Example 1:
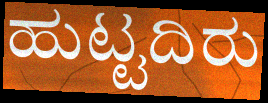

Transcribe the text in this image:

ಹುಟ್ಟದಿರು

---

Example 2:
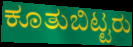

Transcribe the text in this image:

ಕೂತುಬಿಟ್ಟರು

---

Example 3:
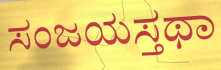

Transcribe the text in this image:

ಸಂಜಯಸ್ತಥಾ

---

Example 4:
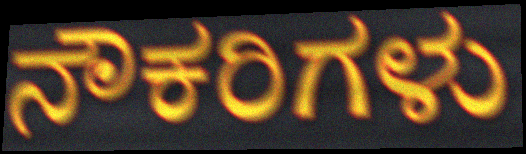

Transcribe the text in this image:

ನೌಕರಿಗಳು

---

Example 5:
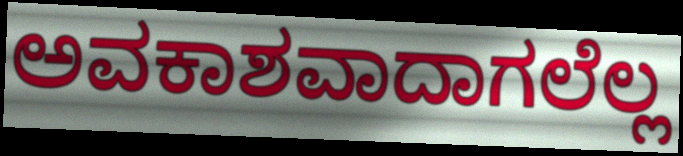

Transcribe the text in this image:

ಅವಕಾಶವಾದಾಗಲೆಲ್ಲ